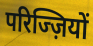
परिज्ज़ियों